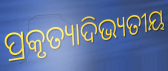
ପ୍ରକୃତ୍ୟାଦିଭ୍ୟତୀୟ